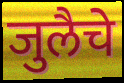
जुलैचे